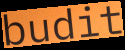
budit